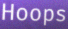
Hoops